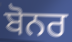
ਬੋਨਰ